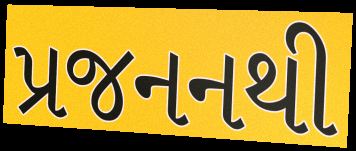
પ્રજનનથી